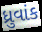
ધ્રુવાંક